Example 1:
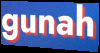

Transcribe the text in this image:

gunah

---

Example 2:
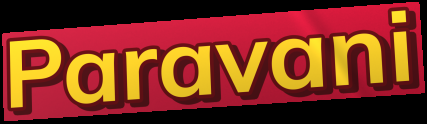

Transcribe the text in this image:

Paravani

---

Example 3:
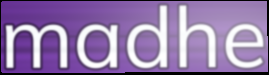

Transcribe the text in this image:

madhe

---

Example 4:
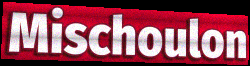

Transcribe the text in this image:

Mischoulon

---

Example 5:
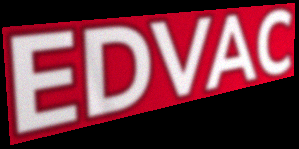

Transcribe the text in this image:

EDVAC